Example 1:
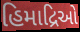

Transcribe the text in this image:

હિમાદ્રિઓ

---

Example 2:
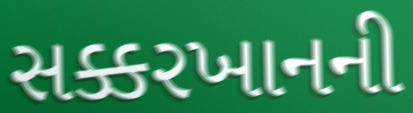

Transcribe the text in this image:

સક્કરખાનની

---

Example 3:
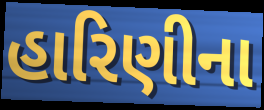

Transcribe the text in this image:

હારિણીના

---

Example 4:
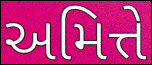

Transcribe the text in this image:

અમિત્તે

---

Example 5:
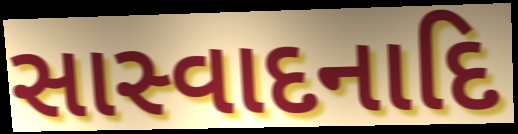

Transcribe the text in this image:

સાસ્વાદનાદિ